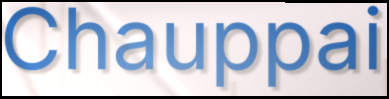
Chauppai